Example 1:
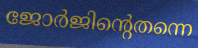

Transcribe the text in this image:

ജോർജിന്റെതന്നെ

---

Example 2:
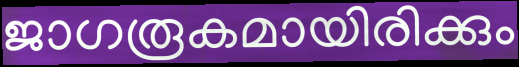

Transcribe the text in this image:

ജാഗരൂകമായിരിക്കും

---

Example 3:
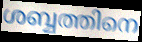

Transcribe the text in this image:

ശബ്ബത്തിനെ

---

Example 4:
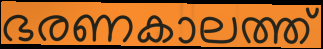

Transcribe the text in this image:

ഭരണകാലത്ത്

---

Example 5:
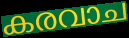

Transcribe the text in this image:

കരവാച